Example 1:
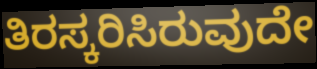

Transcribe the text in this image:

ತಿರಸ್ಕರಿಸಿರುವುದೇ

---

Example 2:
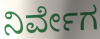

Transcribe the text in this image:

ನಿರ್ವೇಗ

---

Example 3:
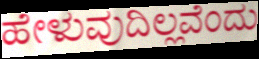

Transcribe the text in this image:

ಹೇಳುವುದಿಲ್ಲವೆಂದು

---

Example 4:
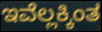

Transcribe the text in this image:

ಇವೆಲ್ಲಕ್ಕಿಂತ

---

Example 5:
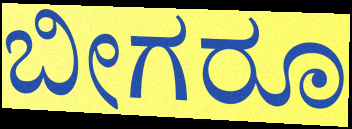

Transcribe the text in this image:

ಬೀಗರೂ